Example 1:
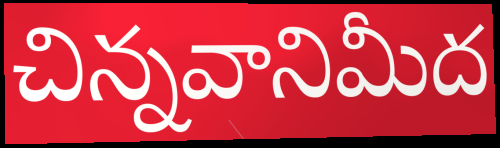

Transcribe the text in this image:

చిన్నవానిమీద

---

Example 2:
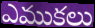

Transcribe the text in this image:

ఎముకలు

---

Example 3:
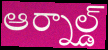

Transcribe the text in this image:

ఆర్నాల్డ్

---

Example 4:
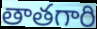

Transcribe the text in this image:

తాతగారి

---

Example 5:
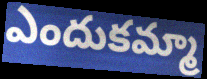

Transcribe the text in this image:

ఎందుకమ్మా